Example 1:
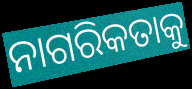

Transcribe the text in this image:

ନାଗରିକତାକୁ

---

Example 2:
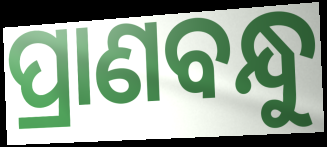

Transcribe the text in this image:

ପ୍ରାଣବନ୍ଧୁ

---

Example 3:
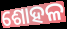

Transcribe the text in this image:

ଶୋହଳ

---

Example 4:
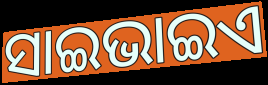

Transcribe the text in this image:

ସାଇଭାଇଏ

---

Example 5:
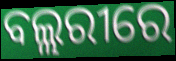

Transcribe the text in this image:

ବଲ୍ଲରୀରେ